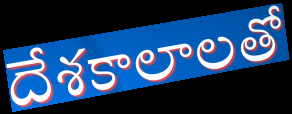
దేశకాలాలతో